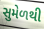
સુમેળથી